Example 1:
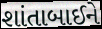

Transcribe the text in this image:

શાંતાબાઈને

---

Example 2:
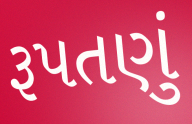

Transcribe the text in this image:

રૂપતણું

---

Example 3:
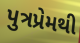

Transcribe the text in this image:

પુત્રપ્રેમથી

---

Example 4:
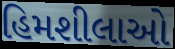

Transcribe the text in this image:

હિમશીલાઓ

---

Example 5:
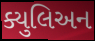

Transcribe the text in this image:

ક્યુલિઅન